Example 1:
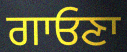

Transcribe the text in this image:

ਗਾਓਣਾ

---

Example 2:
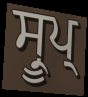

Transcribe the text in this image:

ਸ੍ਰੂਪ੍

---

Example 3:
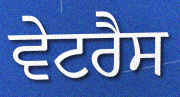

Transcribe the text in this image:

ਵੇਟਰੈਸ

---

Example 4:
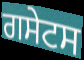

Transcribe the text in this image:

ਗਸੇਟਸ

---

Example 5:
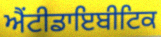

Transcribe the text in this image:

ਐਂਟੀਡਾਇਬੀਟਿਕ